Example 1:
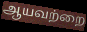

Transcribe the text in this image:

ஆயவற்றை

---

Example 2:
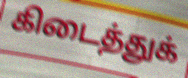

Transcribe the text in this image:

கிடைத்துக்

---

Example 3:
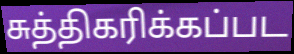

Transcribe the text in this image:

சுத்திகரிக்கப்பட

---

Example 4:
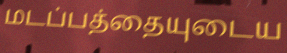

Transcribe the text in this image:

மடப்பத்தையுடைய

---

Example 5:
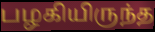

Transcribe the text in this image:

பழகியிருந்த